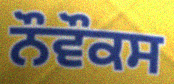
ਨੌਵੌਕਸ